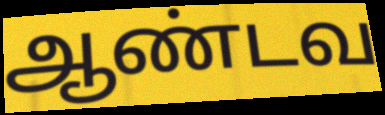
ஆண்டவ